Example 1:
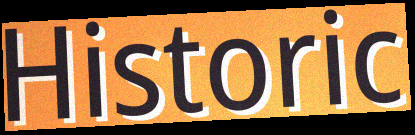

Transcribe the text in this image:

Historic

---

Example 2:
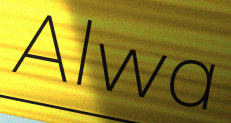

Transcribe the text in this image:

Alwa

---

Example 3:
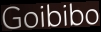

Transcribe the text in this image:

Goibibo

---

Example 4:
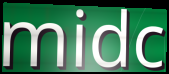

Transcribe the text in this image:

midc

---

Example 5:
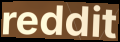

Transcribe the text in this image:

reddit